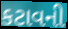
કટાવની